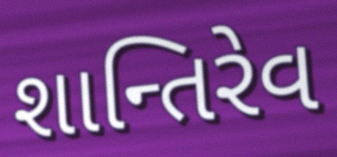
શાન્તિરેવ